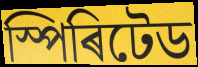
স্পিৰিটেড